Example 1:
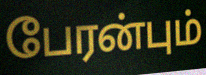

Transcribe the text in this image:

பேரன்பும்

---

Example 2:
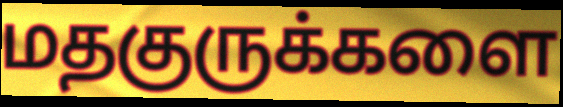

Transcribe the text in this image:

மதகுருக்களை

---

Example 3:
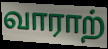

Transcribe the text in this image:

வாராற்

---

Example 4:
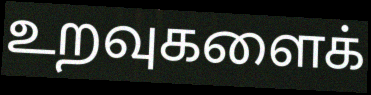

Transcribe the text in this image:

உறவுகளைக்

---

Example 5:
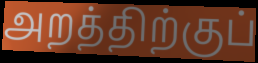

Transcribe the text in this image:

அறத்திற்குப்